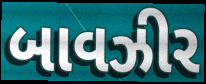
બાવઝીર